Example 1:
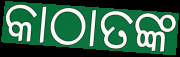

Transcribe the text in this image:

କାଠାତଙ୍କ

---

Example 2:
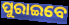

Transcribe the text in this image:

ପୁରାଇବେ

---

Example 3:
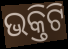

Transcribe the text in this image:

ଭକ୍ତିଟି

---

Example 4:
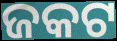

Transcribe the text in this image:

ଜକଟ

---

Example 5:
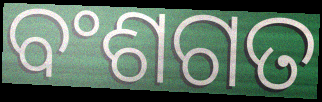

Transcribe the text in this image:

ବଂଶଗତ